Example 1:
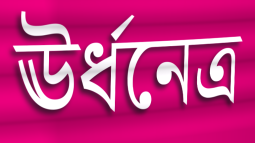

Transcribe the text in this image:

ঊর্ধনেত্র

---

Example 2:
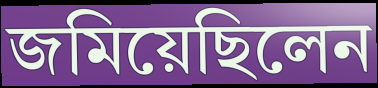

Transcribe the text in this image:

জমিয়েছিলেন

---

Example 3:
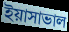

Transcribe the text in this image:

ইয়াসাভাল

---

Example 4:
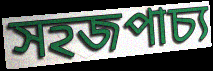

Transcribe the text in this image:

সহজপাচ্য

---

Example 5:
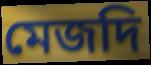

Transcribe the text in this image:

মেজদি